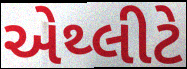
એથ્લીટે